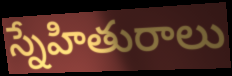
స్నేహితురాలు